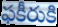
ఫకీరుకి